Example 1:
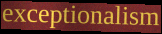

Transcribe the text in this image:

exceptionalism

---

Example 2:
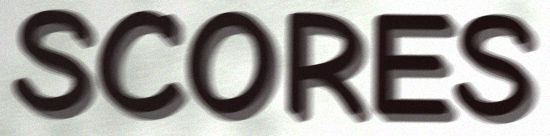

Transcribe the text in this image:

SCORES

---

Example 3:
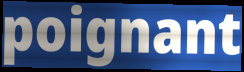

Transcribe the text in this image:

poignant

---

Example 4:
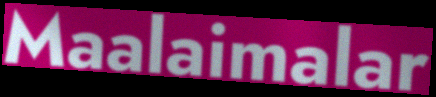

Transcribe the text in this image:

Maalaimalar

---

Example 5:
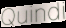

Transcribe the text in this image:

Quindi